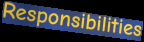
Responsibilities